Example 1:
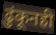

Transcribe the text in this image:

ढुंकूनही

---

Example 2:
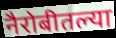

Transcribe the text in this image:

नैरोबीतल्या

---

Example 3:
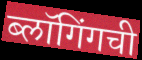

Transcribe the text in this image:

ब्लॉगिंगची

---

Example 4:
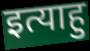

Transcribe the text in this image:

इत्याहु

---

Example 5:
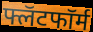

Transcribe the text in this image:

फ्लॅटफॉर्म